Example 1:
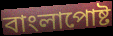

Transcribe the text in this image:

বাংলাপোষ্ট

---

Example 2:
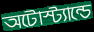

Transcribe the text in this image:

অটোস্ট্যান্ডে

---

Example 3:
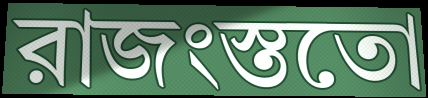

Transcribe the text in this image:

রাজংস্ততো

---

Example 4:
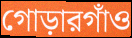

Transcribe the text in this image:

গোড়ারগাঁও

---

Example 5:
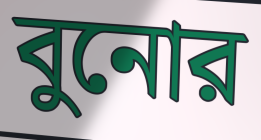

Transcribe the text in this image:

বুনোর